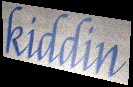
kiddin